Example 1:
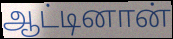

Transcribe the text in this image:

ஆட்டினான்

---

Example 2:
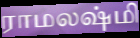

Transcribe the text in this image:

ராமலஷ்மி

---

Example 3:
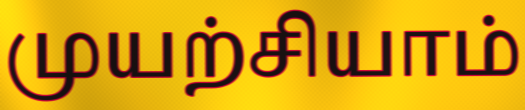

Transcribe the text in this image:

முயற்சியாம்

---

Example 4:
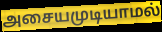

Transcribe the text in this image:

அசையமுடியாமல்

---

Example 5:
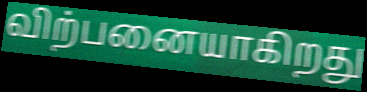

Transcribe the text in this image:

விற்பனையாகிறது